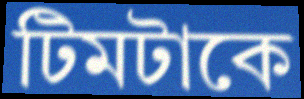
টিমটাকে